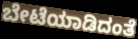
ಬೇಟೆಯಾಡಿದಂತೆ